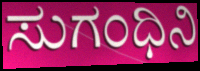
ಸುಗಂಧಿನಿ